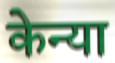
केन्या